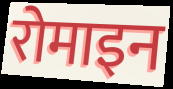
रोमाइन